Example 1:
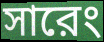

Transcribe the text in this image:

সারেং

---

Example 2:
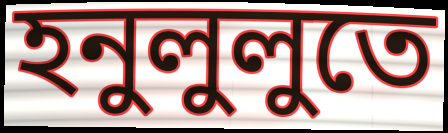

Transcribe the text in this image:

হনুলুলুতে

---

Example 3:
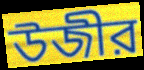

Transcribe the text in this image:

উজীর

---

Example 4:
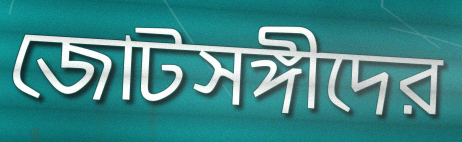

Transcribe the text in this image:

জোটসঙ্গীদের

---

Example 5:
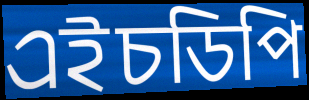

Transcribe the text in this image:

এইচডিপি